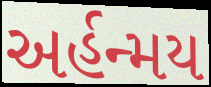
અર્હન્મય